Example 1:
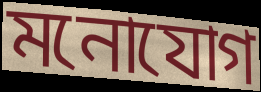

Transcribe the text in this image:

মনোযোগ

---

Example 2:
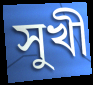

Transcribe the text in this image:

সুখী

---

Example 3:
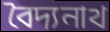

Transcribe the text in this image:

বৈদ্যনাথ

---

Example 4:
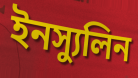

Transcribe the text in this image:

ইনস্যুলিন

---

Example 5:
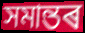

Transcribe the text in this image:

সমান্তৰ